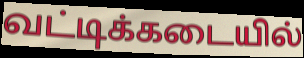
வட்டிக்கடையில்